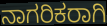
ನಾಗರಿಕರಾಗಿ